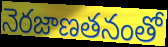
నెరజాణతనంతో